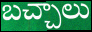
బచ్చాలు